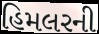
હિમલરની